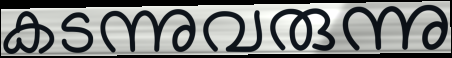
കടന്നുവരുന്നു